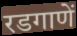
रडगाणें